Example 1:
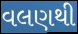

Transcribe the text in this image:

વલણથી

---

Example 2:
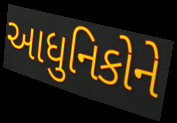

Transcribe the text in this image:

આધુનિકોને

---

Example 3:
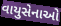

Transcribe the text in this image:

વાયુસેનાઓ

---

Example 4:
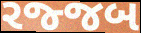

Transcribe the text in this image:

રજ્જબ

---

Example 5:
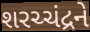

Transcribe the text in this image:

શરચ્ચંદ્રને